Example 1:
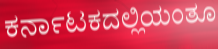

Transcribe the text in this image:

ಕರ್ನಾಟಕದಲ್ಲಿಯಂತೂ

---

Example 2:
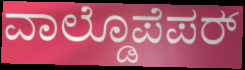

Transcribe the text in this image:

ವಾಲ್ಡೊಪೆಪರ್‍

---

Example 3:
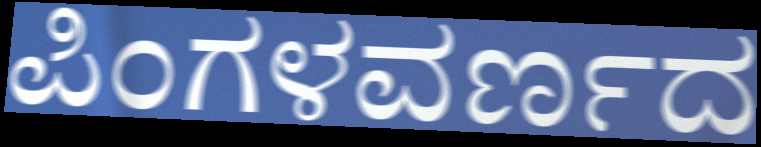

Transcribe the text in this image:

ಪಿಂಗಳವರ್ಣದ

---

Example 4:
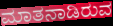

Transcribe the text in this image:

ಮಾತನಾಡಿರುವ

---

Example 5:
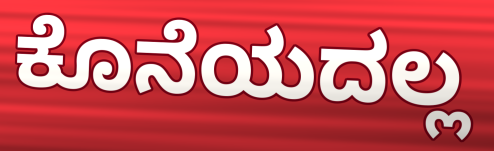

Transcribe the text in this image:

ಕೊನೆಯದಲ್ಲ